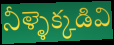
నీళ్ళెక్కడివి